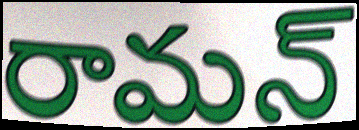
రామన్